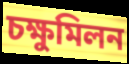
চক্ষুমিলন